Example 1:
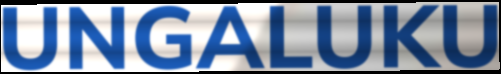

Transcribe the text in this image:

UNGALUKU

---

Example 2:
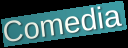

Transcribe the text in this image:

Comedia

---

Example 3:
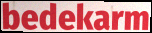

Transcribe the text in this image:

bedekarm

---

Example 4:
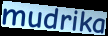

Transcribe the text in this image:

mudrika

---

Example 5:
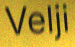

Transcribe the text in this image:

Velji